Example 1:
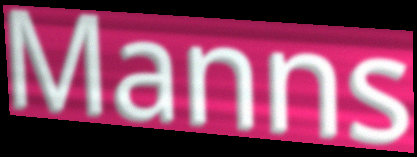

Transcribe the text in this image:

Manns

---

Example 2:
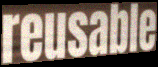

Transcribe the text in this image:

reusable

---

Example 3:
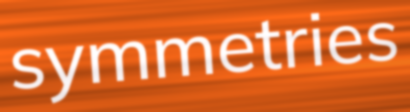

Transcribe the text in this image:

symmetries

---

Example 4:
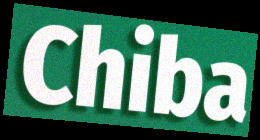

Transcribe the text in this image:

Chiba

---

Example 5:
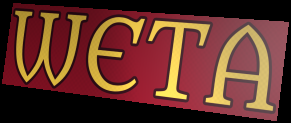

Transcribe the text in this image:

WETA